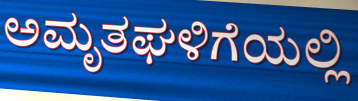
ಅಮೃತಘಳಿಗೆಯಲ್ಲಿ